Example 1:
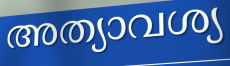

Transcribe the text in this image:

അത്യാവശ്യ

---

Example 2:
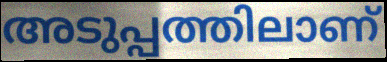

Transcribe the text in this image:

അടുപ്പത്തിലാണ്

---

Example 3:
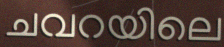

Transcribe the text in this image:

ചവറയിലെ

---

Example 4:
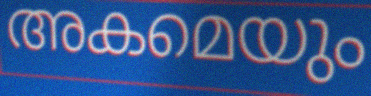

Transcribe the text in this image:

അകമെയും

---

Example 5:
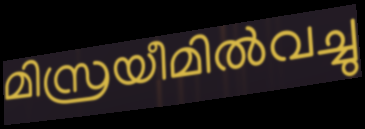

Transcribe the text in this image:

മിസ്രയീമിൽവച്ചു